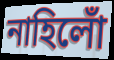
নাহিলোঁ